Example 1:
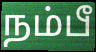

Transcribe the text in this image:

நம்பீ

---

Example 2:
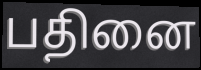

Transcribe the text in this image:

பதினை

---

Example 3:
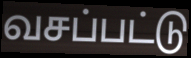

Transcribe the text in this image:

வசப்பட்டு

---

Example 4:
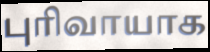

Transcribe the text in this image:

புரிவாயாக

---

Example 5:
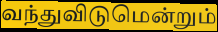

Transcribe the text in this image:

வந்துவிடுமென்றும்